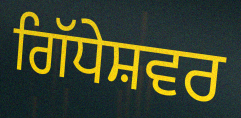
ਗਿੱਧੇਸ਼ਵਰ